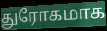
துரோகமாக